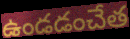
ఉండడంచేత